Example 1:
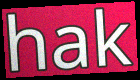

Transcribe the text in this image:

hak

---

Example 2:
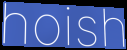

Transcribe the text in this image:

hoish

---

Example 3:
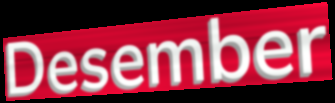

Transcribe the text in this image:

Desember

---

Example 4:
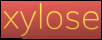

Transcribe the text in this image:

xylose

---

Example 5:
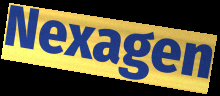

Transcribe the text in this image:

Nexagen